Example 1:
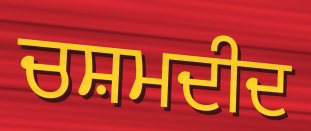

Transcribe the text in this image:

ਚਸ਼ਮਦੀਦ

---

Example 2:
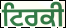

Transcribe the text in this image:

ਟਿਰਕੀ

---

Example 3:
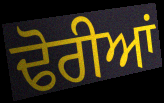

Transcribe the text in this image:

ਢੋਰੀਆਂ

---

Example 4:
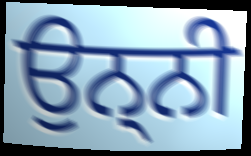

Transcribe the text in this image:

ਉਨ੍ਨੀ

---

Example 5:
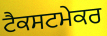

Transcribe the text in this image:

ਟੈਕਸਟਮੇਕਰ